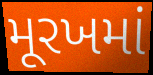
મૂરખમાં